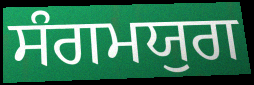
ਸੰਗਮਯੁਗ